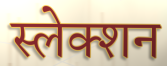
स्लेक्शन